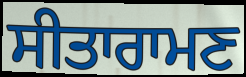
ਸੀਤਾਰਾਮਣ